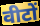
वीटों